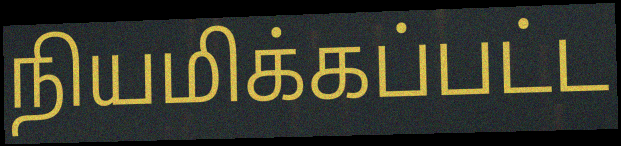
நியமிக்கப்பட்ட